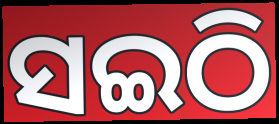
ସଇଠି